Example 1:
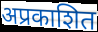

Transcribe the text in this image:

अप्रकाशित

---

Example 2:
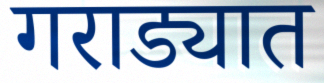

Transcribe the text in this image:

गराड्यात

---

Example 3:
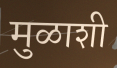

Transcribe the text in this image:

मुळाशी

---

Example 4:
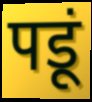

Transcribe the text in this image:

पडूं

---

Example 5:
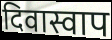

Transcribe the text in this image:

दिवास्वाप